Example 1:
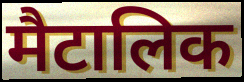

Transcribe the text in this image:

मैटालिक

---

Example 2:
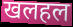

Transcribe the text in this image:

खलहल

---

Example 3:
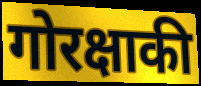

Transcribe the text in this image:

गोरक्षाकी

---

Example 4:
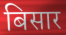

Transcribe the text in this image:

बिसार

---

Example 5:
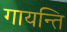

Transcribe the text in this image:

गायन्ति